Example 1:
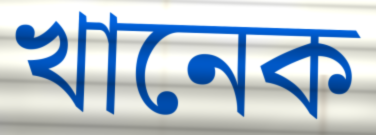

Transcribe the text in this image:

খানেক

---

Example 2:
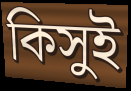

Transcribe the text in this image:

কিসুই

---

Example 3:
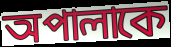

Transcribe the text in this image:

অপালাকে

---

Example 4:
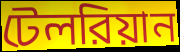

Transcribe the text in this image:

টেলরিয়ান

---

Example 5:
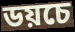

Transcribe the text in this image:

ডয়চে